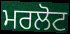
ਮਰਲੋਟ